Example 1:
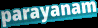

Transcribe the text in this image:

parayanam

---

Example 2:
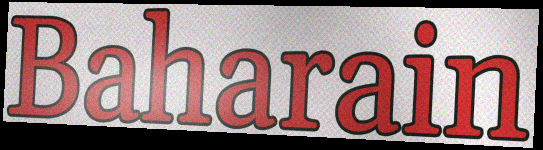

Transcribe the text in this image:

Baharain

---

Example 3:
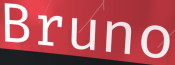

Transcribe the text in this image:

Bruno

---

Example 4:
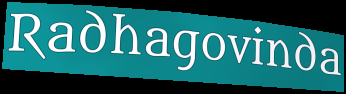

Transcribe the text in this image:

Radhagovinda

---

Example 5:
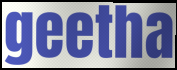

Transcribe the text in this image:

geetha